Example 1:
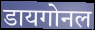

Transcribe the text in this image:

डायगोनल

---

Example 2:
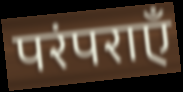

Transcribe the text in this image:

परंपराएँ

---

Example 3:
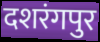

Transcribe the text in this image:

दशरंगपुर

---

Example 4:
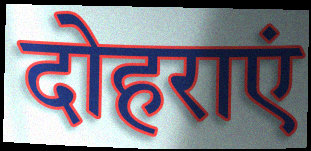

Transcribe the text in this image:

दोहराएं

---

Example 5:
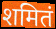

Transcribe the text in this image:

शमितं